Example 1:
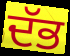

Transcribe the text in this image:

ਦੱਭ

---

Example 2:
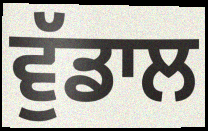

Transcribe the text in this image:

ਵੁੱਡਾਲ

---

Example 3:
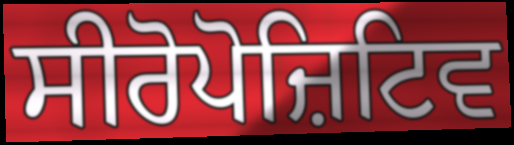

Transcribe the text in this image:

ਸੀਰੋਪੋਜ਼ਿਟਿਵ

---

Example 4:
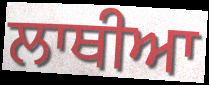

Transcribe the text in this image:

ਲਾਥੀਆ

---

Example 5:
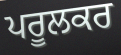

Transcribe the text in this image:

ਪਰੂਲਕਰ